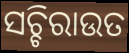
ସଚ୍ଚିରାଉତ